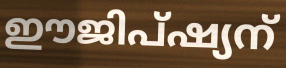
ഈജിപ്ഷ്യന്